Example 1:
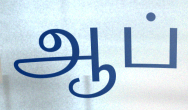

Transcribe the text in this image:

ஆப்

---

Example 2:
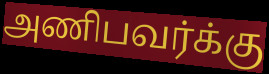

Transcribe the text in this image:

அணிபவர்க்கு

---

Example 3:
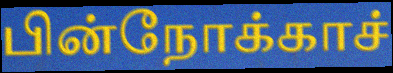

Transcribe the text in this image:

பின்நோக்காச்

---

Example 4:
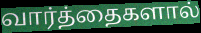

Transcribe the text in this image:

வார்த்தைகளால்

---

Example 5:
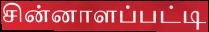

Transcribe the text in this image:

சின்னாளப்பட்டி